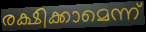
രക്ഷിക്കാമെന്ന്